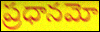
ప్రధానమో